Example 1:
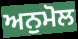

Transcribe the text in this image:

ਅਨੁਮੋਲ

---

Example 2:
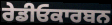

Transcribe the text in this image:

ਰੇਡੀਓਕਾਰਬਨ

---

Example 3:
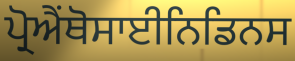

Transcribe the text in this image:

ਪ੍ਰੋਐਂਥੋਸਾਈਨਿਡਿਨਸ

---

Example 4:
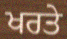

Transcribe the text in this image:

ਖਰਤੇ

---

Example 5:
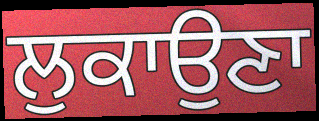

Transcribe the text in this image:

ਲੁਕਾਉਣਾ